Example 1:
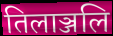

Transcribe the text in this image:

तिलाञ्जलि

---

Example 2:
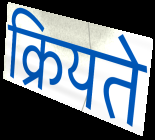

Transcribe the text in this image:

क्रियते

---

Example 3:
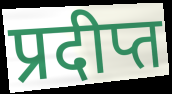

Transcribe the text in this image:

प्रदीप्त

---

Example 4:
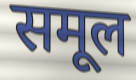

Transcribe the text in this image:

समूल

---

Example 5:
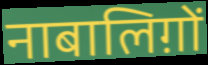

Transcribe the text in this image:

नाबालिग़ों